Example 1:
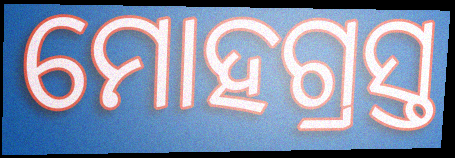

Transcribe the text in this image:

ମୋହଗ୍ରସ୍ତ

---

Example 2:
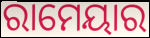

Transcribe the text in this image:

ରାମେୟାର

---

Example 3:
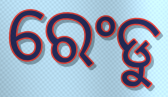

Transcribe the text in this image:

ରେଂଡୁ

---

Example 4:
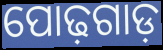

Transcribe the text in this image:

ପୋଢ଼ଗାଡ଼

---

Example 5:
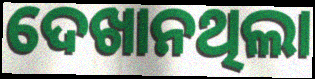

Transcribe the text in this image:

ଦେଖାନଥିଲା